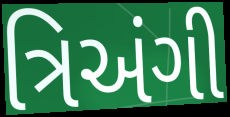
ત્રિઅંગી